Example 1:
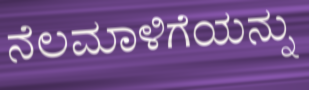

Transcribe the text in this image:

ನೆಲಮಾಳಿಗೆಯನ್ನು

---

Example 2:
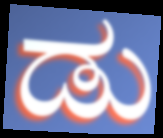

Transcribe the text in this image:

ಡು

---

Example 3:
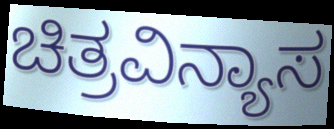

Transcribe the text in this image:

ಚಿತ್ರವಿನ್ಯಾಸ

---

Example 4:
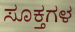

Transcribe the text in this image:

ಸೂಕ್ತಗಳ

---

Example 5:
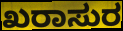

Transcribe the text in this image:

ಖರಾಸುರ